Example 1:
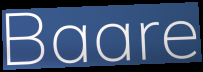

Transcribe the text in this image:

Baare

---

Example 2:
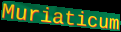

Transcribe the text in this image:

Muriaticum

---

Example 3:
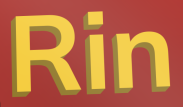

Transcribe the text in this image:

Rin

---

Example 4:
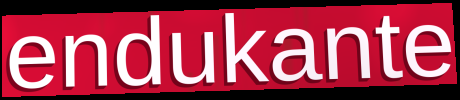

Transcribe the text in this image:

endukante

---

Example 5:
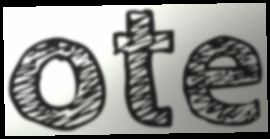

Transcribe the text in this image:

ote